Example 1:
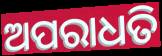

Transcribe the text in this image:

ଅପରାଧତି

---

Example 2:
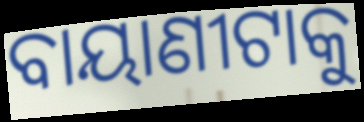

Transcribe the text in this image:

ବାୟାଣୀଟାକୁ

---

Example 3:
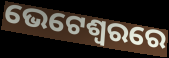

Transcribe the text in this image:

ଭେଟେଶ୍ୱରରେ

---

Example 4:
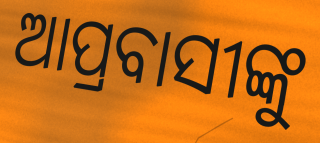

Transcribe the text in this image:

ଆପ୍ରବାସୀଙ୍କୁ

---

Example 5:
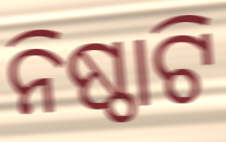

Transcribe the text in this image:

ନିଷ୍ଠାଟି